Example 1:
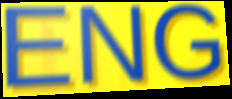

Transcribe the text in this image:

ENG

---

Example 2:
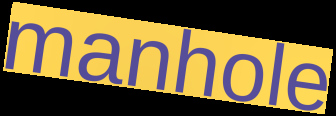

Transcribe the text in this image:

manhole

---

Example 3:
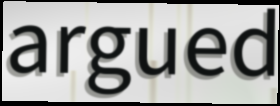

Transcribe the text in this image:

argued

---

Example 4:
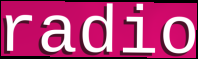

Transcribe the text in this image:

radio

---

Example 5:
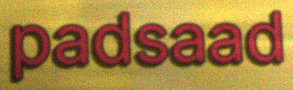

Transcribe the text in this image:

padsaad